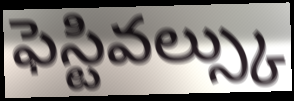
ఫెస్టివల్స్కు